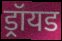
ड्रॉयड